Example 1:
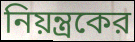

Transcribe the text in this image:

নিয়ন্ত্রকের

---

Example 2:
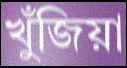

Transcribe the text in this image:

খুঁজিয়া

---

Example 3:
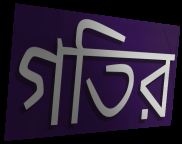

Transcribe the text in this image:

গতির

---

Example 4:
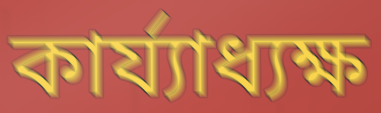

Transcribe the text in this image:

কার্য্যাধ্যক্ষ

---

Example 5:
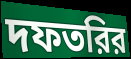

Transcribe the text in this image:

দফতরির